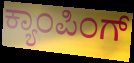
ಕ್ಯಾಂಪಿಂಗ್